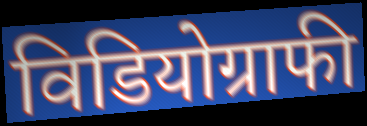
विडियोग्राफी